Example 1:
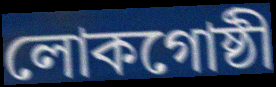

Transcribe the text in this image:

লোকগোষ্ঠী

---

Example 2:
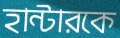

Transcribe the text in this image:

হান্টারকে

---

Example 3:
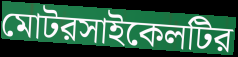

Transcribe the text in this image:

মোটরসাইকেলটির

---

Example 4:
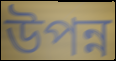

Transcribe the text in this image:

উপন্ন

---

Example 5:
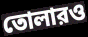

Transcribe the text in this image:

তোলারও